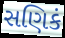
સણિકં